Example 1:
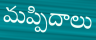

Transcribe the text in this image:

మప్పిదాలు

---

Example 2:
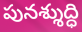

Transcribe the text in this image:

పునశ్శుద్ధి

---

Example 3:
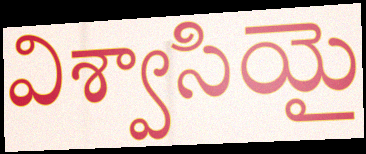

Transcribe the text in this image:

విశ్వాసియై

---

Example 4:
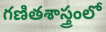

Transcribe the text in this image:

గణితశాస్త్రంలో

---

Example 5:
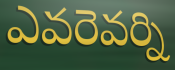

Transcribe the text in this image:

ఎవరెవర్ని